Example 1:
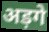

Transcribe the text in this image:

अड़गे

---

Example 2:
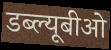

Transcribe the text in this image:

डब्ल्यूबीओ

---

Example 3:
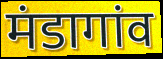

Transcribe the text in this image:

मंडागांव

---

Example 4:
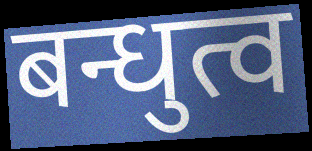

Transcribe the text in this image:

बन्धुत्व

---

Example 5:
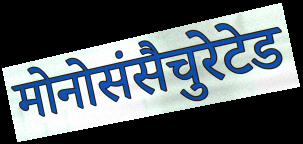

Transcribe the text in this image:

मोनोसंसैचुरेटेड